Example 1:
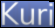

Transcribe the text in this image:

Kuri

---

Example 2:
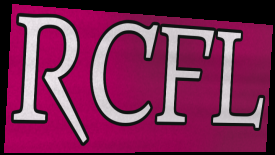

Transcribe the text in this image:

RCFL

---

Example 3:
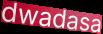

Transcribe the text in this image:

dwadasa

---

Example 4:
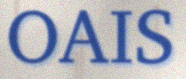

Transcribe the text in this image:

OAIS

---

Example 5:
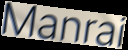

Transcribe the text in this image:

Manrai